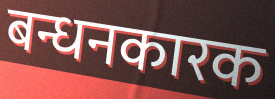
बन्धनकारक